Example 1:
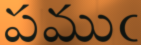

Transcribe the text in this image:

పముఁ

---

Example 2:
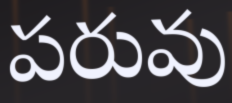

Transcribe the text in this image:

పరువు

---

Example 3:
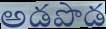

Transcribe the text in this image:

అడపొడ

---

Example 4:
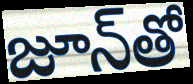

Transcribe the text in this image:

జూన్‌తో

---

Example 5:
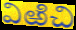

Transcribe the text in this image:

విఱిచి